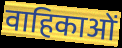
वाहिकाओं